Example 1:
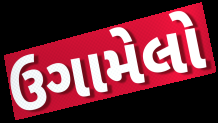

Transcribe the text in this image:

ઉગામેલો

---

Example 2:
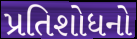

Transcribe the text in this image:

પ્રતિશોધનો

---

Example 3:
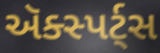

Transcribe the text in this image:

ઍક્સ્પર્ટ્સ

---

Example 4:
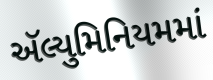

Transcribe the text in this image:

ઍલ્યુમિનિયમમાં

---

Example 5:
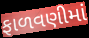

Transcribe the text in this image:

ફાળવણીમાં